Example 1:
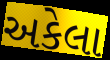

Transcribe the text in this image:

અકેલા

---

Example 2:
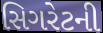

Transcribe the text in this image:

સિગરેટની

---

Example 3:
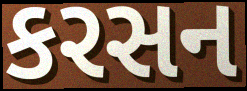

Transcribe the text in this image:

કરસન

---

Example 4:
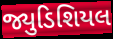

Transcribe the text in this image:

જ્યુડિશિયલ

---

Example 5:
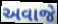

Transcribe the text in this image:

અવાજે